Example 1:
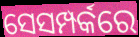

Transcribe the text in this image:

ସେସମ୍ପର୍କରେ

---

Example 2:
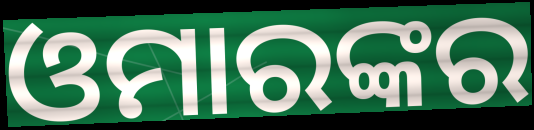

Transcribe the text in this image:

ଓମାରଙ୍କର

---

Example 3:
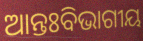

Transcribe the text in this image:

ଆନ୍ତଃବିଭାଗୀୟ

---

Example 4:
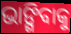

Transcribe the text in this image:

ଭାଙ୍ଗିବାକୁ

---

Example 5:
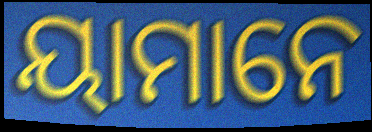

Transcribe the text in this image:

ୟାମାନେ